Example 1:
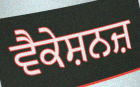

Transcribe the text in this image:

ਵੈਕੇਸ਼ਨਜ਼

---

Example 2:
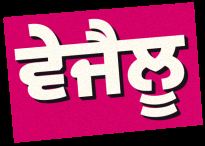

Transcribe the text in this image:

ਵੇਜੈਲੂ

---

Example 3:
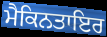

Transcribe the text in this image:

ਮੈਕਿਨਤਾਇਰ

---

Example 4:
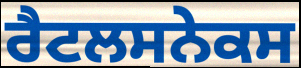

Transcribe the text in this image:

ਰੈਟਲਸਨੇਕਸ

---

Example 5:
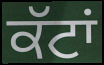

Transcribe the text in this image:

ਕੱਟਾਂ